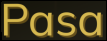
Pasa